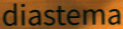
diastema